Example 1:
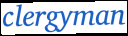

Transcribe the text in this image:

clergyman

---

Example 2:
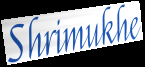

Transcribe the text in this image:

Shrimukhe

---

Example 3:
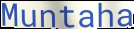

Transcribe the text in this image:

Muntaha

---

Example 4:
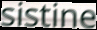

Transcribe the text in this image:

sistine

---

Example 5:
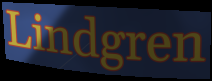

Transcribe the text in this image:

Lindgren